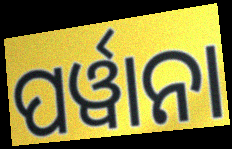
ପର୍ୱାନା